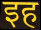
इह